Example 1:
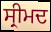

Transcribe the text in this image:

ਸ੍ਰੀਮਦ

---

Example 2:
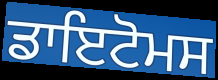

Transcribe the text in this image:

ਡਾਇਟੋਮਸ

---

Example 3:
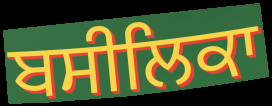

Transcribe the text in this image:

ਬਸੀਲਿਕਾ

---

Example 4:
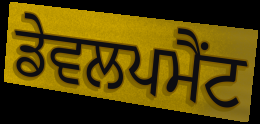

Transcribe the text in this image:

ਡੇਵਲਪਮੈਂਟ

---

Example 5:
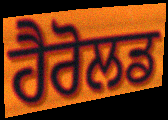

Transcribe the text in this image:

ਹੈਰੋਲਡ